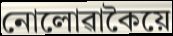
নোলোৱাকৈয়ে